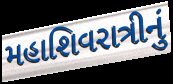
મહાશિવરાત્રીનું